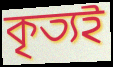
কৃত্যই